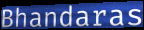
Bhandaras